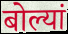
बोल्यां